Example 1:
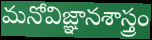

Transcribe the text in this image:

మనోవిజ్ఞానశాస్త్రం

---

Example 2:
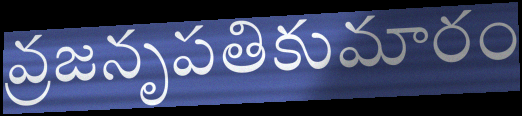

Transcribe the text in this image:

వ్రజనృపతికుమారం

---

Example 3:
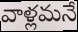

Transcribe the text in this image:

వాళ్లమనే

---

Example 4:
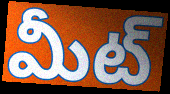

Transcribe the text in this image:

మీట్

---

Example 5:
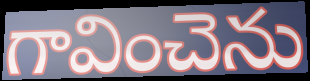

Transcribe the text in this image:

గావించెను